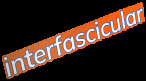
interfascicular